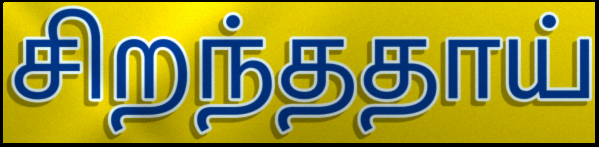
சிறந்ததாய்